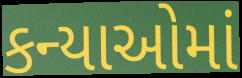
કન્યાઓમાં